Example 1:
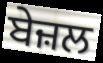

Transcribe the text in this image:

ਬੇਜ਼ਲ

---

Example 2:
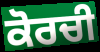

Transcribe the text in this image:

ਕੋਰਚੀ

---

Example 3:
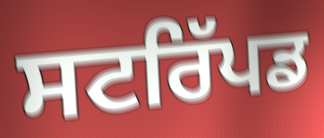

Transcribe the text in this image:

ਸਟਰਿੱਪਡ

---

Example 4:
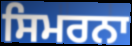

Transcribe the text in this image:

ਸਿਮਰਨਾ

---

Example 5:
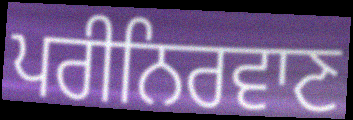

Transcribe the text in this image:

ਪਰੀਨਿਰਵਾਣ